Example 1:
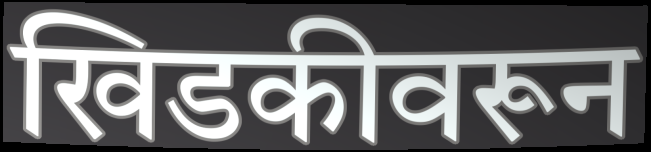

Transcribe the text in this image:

खिडकीवरून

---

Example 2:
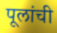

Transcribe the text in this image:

पूलांची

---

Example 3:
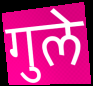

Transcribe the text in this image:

गुले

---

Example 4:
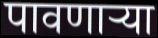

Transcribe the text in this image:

पावणाऱ्या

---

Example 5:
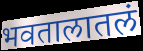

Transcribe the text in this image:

भवतालातलं